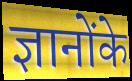
ज्ञानोंके